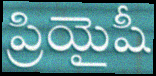
ప్రియైషీ